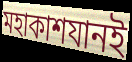
মহাকাশযানই